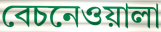
বেচনেওয়ালা